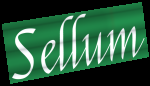
Sellum